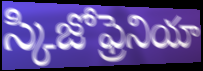
స్కిజోఫ్రెనియా